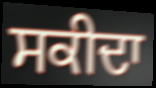
ਸਕੀਦਾ